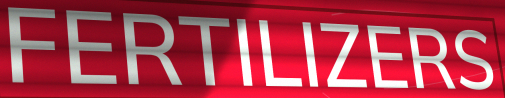
FERTILIZERS